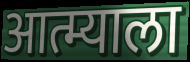
आत्म्याला